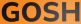
GOSH